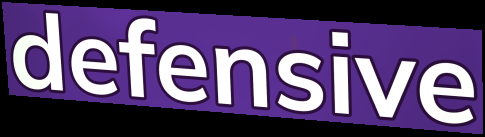
defensive